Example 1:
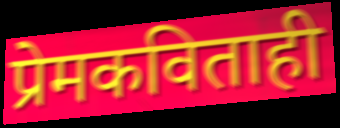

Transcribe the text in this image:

प्रेमकविताही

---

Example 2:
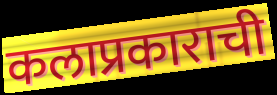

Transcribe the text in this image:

कलाप्रकाराची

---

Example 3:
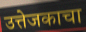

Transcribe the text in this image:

उत्तेजकाचा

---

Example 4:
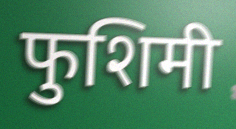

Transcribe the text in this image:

फुशिमी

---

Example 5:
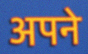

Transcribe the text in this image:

अपने